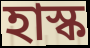
হাস্ক